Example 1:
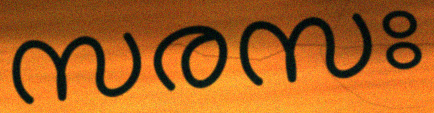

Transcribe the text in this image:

സരസഃ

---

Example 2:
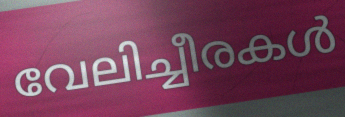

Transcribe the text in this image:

വേലിച്ചീരകൾ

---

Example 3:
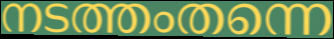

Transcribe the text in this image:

നടത്തംതന്നെ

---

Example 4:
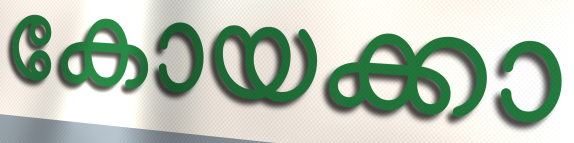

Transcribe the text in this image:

കോയക്കാ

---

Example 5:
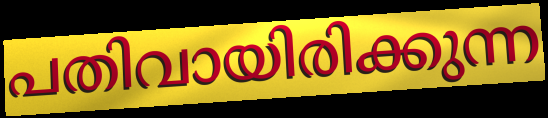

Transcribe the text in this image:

പതിവായിരിക്കുന്ന